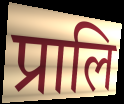
प्रालि